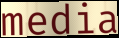
media